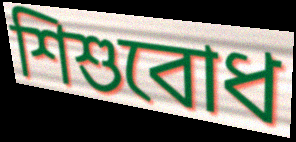
শিশুবোধ